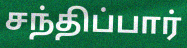
சந்திப்பார்